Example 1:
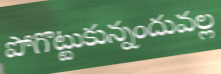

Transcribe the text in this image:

పోగొట్టుకున్నందువల్ల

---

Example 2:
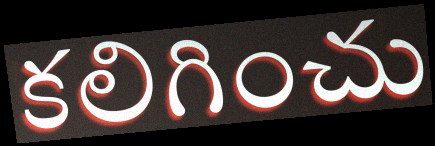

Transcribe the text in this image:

కలిగించు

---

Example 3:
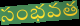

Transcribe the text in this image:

సంభవత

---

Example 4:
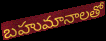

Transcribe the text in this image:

బహుమానాలతో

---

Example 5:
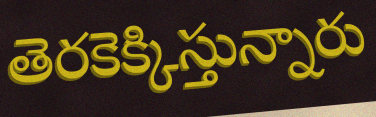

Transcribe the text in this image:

తెరకెక్కిస్తున్నారు